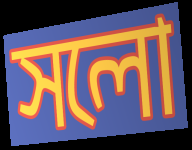
সলো